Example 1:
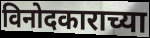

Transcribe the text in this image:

विनोदकाराच्या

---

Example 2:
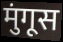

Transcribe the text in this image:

मुंगूस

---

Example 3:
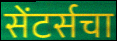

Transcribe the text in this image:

सेंटर्सचा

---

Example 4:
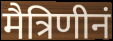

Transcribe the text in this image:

मैत्रिणीनं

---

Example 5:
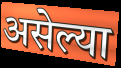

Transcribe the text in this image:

असेल्या